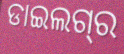
ଡାଇଲଗ୍‌ର